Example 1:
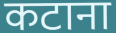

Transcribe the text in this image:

कटाना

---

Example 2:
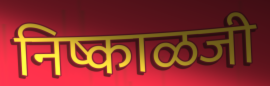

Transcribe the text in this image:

निष्काळजी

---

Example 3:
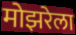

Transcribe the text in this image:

मोझरेला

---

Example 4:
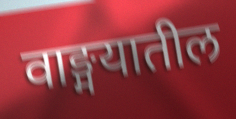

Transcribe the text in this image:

वाङ्मयातील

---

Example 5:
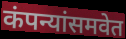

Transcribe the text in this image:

कंपन्यांसमवेत